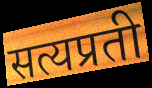
सत्यप्रती